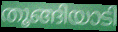
തൂങ്ങിയാടി